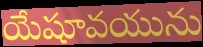
యేషూవయును